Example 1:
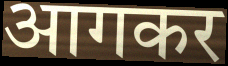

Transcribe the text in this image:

आगकर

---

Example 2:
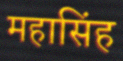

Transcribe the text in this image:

महासिंह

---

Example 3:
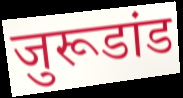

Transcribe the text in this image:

जुरूडांड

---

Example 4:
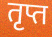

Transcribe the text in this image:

तृप्त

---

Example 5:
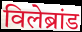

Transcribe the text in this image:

विलेब्रांड